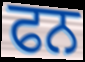
ਫਨ